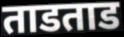
ताडताड